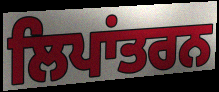
ਲਿਪਾਂਤਰਨ